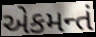
એકમન્તં